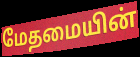
மேதமையின்